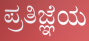
ಪ್ರತಿಜ್ಞೆಯ